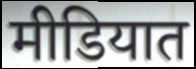
मीडियात